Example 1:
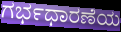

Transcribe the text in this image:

ಗರ್ಭಧಾರಣೆಯ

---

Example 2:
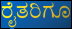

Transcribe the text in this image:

ರೈತರಿಗೂ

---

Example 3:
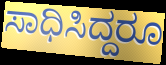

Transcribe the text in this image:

ಸಾಧಿಸಿದ್ದರೂ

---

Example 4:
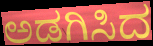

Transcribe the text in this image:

ಅಡಗಿಸಿದ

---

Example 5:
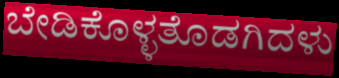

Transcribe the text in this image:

ಬೇಡಿಕೊಳ್ಳತೊಡಗಿದಳು